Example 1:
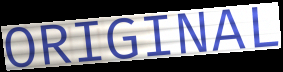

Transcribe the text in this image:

ORIGINAL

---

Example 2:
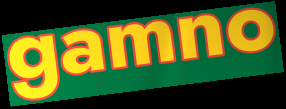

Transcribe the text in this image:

gamno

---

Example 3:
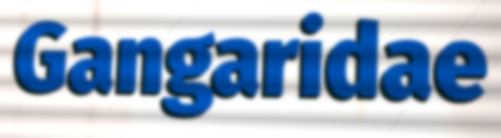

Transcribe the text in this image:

Gangaridae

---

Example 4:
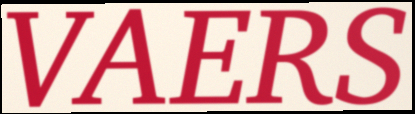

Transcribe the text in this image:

VAERS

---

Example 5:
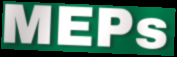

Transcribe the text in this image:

MEPs